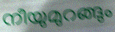
നീയുമുറങ്ങും